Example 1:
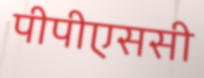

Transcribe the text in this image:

पीपीएससी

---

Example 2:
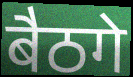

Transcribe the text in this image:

बैठगे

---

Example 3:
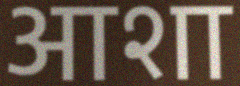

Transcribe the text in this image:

आशा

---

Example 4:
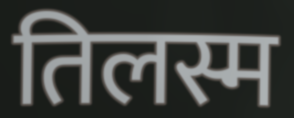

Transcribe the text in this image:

तिलस्म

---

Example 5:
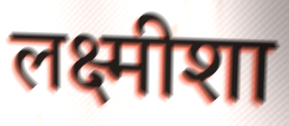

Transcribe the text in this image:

लक्ष्मीशा